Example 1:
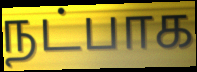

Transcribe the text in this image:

நட்பாக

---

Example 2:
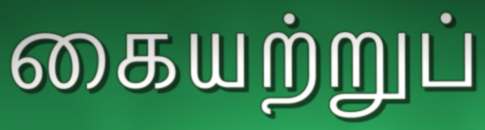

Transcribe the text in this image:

கையற்றுப்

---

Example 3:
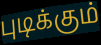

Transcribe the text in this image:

புடிக்கும்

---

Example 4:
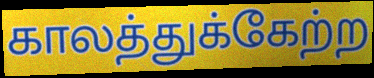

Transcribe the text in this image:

காலத்துக்கேற்ற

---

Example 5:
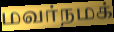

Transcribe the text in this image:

மவர்நமக்